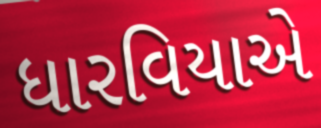
ધારવિયાએ